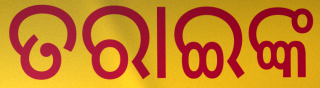
ତରାଇଙ୍କ